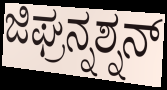
ಜಿಘ್ರನ್ನಶ್ನನ್